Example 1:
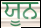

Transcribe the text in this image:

ਯੂਨ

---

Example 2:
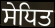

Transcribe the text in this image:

ਸੇਧਿਤ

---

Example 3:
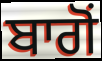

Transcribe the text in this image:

ਬਾਗੋਂ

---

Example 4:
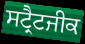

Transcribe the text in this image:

ਸਟ੍ਰੈਟਜੀਕ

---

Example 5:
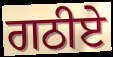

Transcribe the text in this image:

ਗਠੀਏ